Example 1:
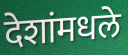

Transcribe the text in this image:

देशांमधले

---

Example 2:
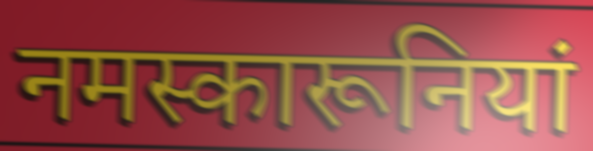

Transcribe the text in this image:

नमस्कारूनियां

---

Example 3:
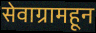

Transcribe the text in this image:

सेवाग्रामहून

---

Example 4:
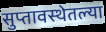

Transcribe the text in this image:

सुप्तावस्थेतल्या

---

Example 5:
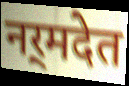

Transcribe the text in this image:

नर्मदेत